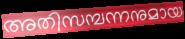
അതിസമ്പന്നനുമായ